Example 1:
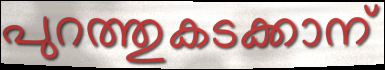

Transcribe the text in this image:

പുറത്തുകടക്കാന്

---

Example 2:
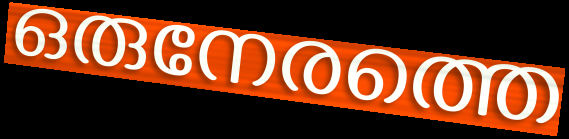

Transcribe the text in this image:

ഒരുനേരത്തെ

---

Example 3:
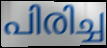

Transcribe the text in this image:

പിരിച്ച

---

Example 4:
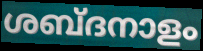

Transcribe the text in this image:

ശബ്ദനാളം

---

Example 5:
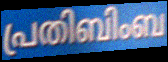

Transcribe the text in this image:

പ്രതിബിംബ